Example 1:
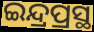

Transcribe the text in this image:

ଇନ୍ଦ୍ରପ୍ରସ୍ଥ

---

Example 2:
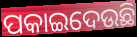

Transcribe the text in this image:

ପକାଇଦେଉଛି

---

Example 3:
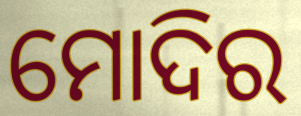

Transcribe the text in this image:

ମୋଦିର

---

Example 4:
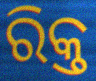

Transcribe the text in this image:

ରିକ୍ତ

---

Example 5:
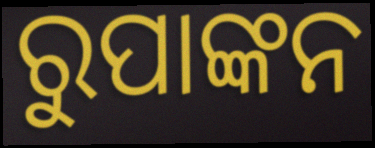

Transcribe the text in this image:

ରୁପାଙ୍କନ